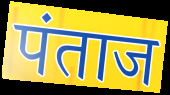
पंताज